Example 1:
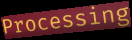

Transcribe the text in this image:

Processing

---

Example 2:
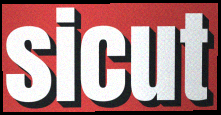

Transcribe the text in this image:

sicut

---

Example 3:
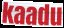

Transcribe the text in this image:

kaadu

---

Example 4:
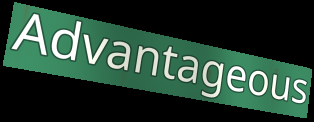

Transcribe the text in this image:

Advantageous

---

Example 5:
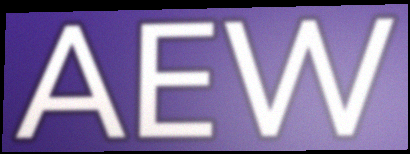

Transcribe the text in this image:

AEW